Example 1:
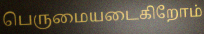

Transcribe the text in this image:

பெருமையடைகிறோம்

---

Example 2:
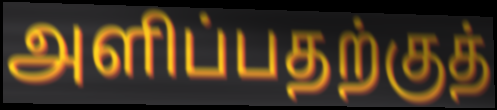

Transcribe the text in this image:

அளிப்பதற்குத்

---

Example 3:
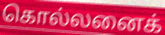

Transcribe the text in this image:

கொல்லனைக்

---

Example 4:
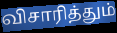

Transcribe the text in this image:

விசாரித்தும்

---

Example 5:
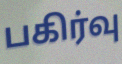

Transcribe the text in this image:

பகிர்வு